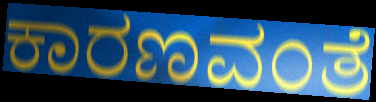
ಕಾರಣವಂತೆ